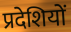
प्रदेशियों